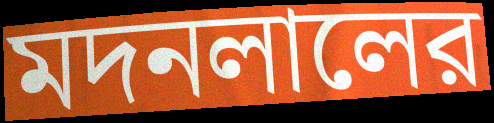
মদনলালের